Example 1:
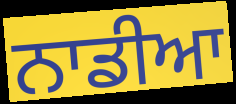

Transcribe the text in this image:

ਨਾਡੀਆ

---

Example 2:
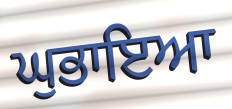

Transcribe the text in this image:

ਘੁਭਾਇਆ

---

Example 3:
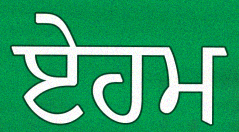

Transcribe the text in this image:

ਏਹਮ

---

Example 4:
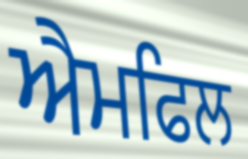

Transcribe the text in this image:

ਐਮਫਿਲ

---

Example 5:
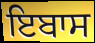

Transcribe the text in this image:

ਇਬਾਸ